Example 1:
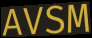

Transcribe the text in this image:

AVSM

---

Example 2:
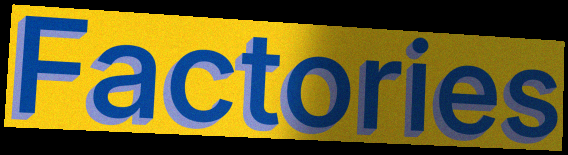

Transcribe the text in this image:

Factories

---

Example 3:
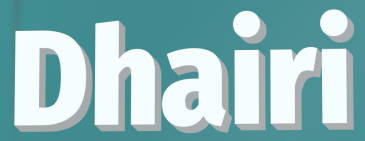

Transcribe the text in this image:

Dhairi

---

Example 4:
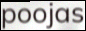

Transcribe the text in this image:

poojas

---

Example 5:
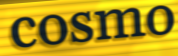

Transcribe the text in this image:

cosmo